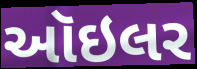
ઑઇલર